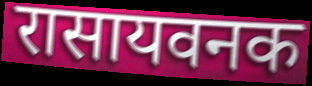
रासायवनक